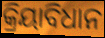
କ୍ରିୟାବିଧାନ